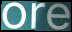
ore